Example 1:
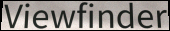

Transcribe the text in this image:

Viewfinder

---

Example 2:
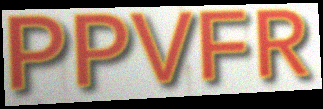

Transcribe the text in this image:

PPVFR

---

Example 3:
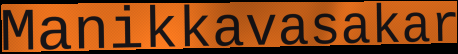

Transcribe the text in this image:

Manikkavasakar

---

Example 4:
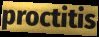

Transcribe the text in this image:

proctitis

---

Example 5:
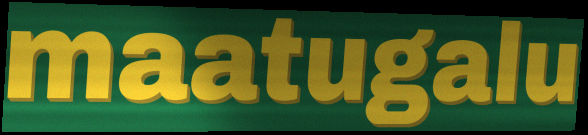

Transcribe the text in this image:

maatugalu